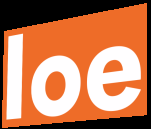
Ioe